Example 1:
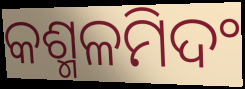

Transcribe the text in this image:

କଶ୍ମଳମିଦଂ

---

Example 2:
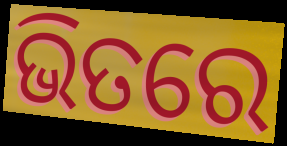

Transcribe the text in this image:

ଭିତରେ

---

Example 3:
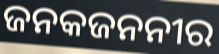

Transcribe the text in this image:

ଜନକଜନନୀର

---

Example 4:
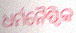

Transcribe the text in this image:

ଧର୍ମନୈଷ୍ଠିକ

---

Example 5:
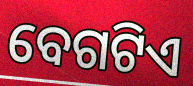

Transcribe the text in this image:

ବେଗଟିଏ